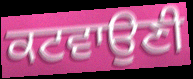
ਕਟਵਾਉਣੀ